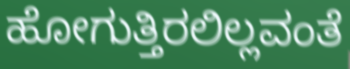
ಹೋಗುತ್ತಿರಲಿಲ್ಲವಂತೆ